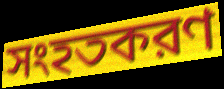
সংহতকরণ